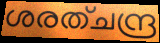
ശരത്ചന്ദ്ര